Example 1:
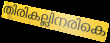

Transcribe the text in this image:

തിരികല്ലിനരികെ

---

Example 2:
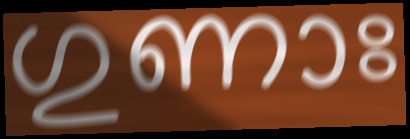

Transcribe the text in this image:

ഗുണാഃ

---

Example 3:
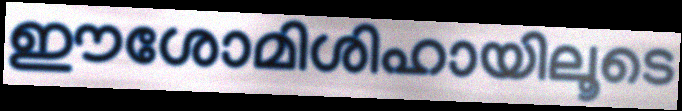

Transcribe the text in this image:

ഈശോമിശിഹായിലൂടെ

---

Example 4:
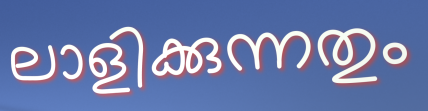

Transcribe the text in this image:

ലാളിക്കുന്നതും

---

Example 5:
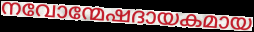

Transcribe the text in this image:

നവോന്മേഷദായകമായ